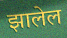
झालेल